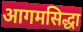
आगमसिद्धा